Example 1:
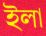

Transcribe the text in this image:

ইলা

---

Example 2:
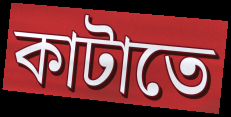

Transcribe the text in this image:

কাটাতে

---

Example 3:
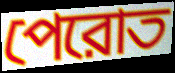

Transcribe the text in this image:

পেরোত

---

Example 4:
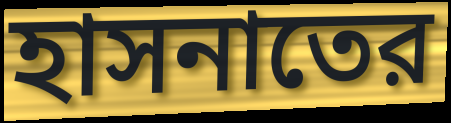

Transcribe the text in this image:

হাসনাতের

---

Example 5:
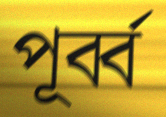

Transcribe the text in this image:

পূর্ব্ব